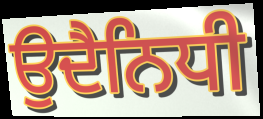
ਉਦੈਨਿਧੀ